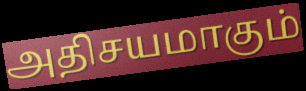
அதிசயமாகும்